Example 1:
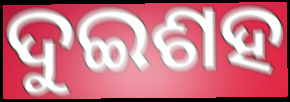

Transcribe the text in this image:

ଦୁଇଶହ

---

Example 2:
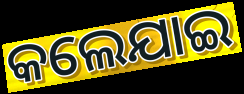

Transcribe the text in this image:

କଲେଯାଇ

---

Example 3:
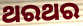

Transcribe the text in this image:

ଥରଥର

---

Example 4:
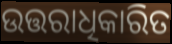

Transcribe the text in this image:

ଉତ୍ତରାଧିକାରିତ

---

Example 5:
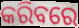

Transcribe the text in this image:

କରିବରେ